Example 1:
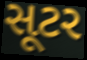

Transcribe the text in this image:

સૂટર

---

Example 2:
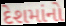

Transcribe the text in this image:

દેશમાંનો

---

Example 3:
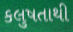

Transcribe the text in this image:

કલુષતાથી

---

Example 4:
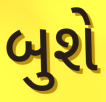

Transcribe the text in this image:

બુશે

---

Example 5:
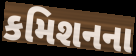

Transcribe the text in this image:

કમિશનના